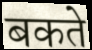
बकते